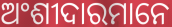
ଅଂଶୀଦାରମାନେ